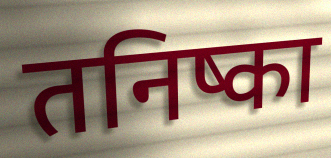
तनिष्का